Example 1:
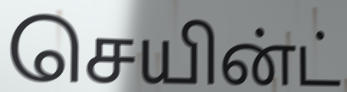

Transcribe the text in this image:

செயின்ட்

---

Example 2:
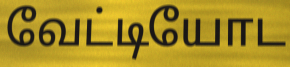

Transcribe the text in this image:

வேட்டியோட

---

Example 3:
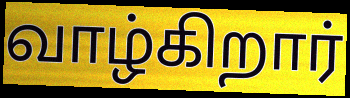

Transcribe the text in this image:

வாழ்கிறார்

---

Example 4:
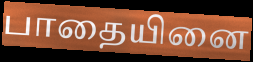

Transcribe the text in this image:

பாதையினை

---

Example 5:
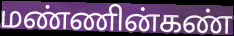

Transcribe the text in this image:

மண்ணின்கண்